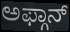
ಅಫ್ಗಾನ್